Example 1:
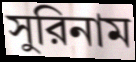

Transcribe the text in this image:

সুরিনাম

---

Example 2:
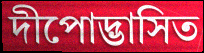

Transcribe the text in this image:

দীপোদ্ভাসিত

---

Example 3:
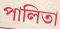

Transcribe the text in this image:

পালিতা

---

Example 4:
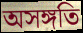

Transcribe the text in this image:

অসঙ্গতি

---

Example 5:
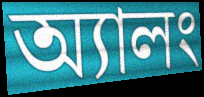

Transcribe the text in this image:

অ্যালং